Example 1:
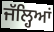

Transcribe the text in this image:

ਜੱਲ੍ਹਿਆਂ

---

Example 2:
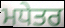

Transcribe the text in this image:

ਮਧੇਤਰ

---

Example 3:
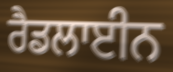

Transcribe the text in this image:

ਰੈਡਲਾਈਨ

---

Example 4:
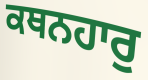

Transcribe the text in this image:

ਕਥਨਹਾਰੁ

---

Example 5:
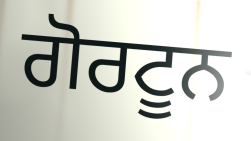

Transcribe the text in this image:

ਗੋਰਟੂਨ